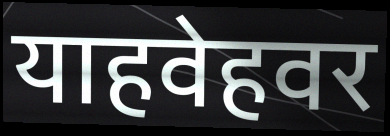
याहवेहवर